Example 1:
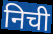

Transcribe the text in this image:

निची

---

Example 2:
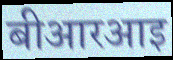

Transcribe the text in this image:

बीआरआइ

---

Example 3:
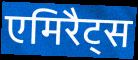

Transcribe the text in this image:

एमिरैट्स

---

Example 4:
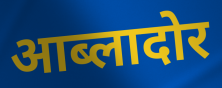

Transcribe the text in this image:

आब्लादोर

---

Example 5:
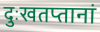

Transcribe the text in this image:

दुःखतप्तानां